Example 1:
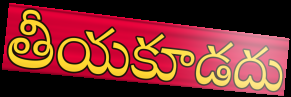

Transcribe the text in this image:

తీయకూడదు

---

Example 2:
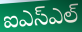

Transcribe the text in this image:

ఐఎస్ఎల్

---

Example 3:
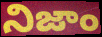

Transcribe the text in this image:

నిజాం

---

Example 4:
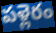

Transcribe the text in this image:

పళ్లెరం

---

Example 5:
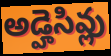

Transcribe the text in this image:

అడ్హెసివ్లు